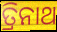
ତ୍ରିନାଥ